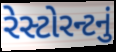
રેસ્ટોરન્ટનું